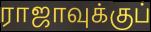
ராஜாவுக்குப்